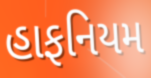
હાફનિયમ